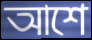
আশে